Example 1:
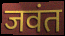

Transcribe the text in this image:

जवंत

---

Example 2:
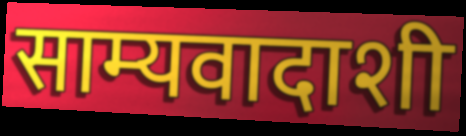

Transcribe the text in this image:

साम्यवादाशी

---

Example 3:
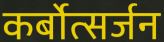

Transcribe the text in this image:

कर्बोत्सर्जन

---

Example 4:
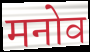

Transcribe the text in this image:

मनोव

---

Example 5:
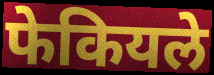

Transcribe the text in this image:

फेकियले